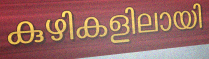
കുഴികളിലായി